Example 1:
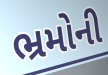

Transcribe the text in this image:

ભ્રમોની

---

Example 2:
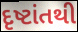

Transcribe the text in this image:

દૃષ્ટાંતથી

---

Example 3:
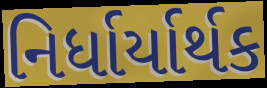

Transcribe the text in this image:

નિર્ધાર્યાર્થક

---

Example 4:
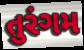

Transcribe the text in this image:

તુરંગમ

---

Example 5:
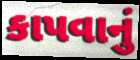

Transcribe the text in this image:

કાપવાનું